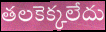
తలకెక్కలేదు